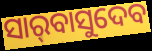
ସାର୍‌ବାସୁଦେବ